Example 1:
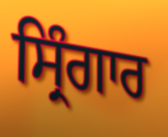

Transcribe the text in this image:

ਸ੍ਰਿੰਗਾਰ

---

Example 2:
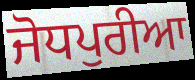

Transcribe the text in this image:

ਜੋਧਪੁਰੀਆ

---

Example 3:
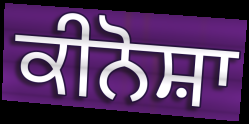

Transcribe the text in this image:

ਕੀਨੋਸ਼ਾ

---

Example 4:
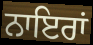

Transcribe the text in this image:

ਨਾਇਰਾਂ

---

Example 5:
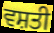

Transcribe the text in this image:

ਵਸ਼ਤੀ